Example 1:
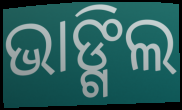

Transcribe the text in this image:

ଭାଙ୍ଗିଲ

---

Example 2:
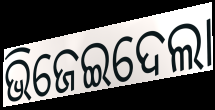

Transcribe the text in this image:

ଭିଜେଇଦେଲା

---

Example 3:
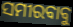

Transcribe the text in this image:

ସମୀରବାବୁ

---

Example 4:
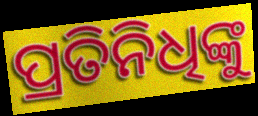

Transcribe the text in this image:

ପ୍ରତିନିଧିଙ୍କୁ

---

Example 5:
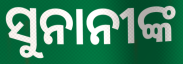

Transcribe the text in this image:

ସୁନାନୀଙ୍କ